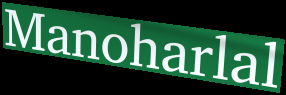
Manoharlal